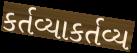
કર્તવ્યાકર્તવ્ય